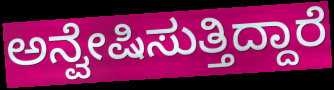
ಅನ್ವೇಷಿಸುತ್ತಿದ್ದಾರೆ